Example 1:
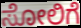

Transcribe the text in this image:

ಸೋಲಿಗೆ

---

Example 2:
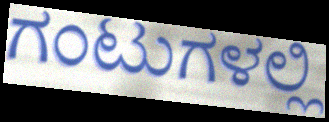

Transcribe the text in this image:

ಗಂಟುಗಳಲ್ಲಿ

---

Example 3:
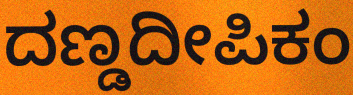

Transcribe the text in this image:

ದಣ್ಡದೀಪಿಕಂ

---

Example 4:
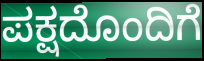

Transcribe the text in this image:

ಪಕ್ಷದೊಂದಿಗೆ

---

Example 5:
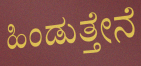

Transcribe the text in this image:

ಹಿಂಡುತ್ತೇನೆ